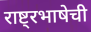
राष्ट्रभाषेची